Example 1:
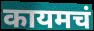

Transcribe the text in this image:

कायमचं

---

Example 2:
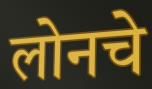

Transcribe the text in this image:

लोनचे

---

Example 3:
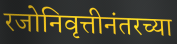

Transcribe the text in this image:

रजोनिवृत्तीनंतरच्या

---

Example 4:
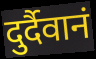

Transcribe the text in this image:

दुर्दैवानं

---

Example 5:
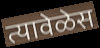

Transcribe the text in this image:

त्यावेळेस